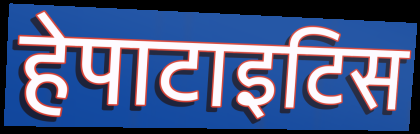
हेपाटाइटिस